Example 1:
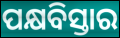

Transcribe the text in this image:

ପକ୍ଷବିସ୍ତାର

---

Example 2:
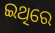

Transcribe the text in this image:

ଇଥିରେ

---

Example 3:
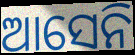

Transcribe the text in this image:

ଆସେନି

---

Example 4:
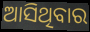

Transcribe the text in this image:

ଆସିଥିବାର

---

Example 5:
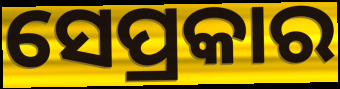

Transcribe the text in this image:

ସେପ୍ରକାର